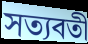
সত্যবতী